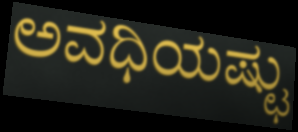
ಅವಧಿಯಷ್ಟು